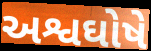
અશ્વઘોષે